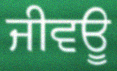
ਜੀਵਊ